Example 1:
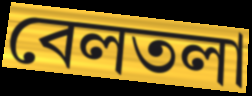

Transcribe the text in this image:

বেলতলা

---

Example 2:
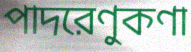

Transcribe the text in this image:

পাদরেণুকণা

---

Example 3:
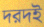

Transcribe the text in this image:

দরদই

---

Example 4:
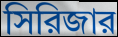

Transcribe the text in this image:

সিরিজার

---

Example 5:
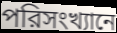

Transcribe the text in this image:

পরিসংখ্যানে